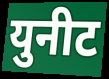
युनीट